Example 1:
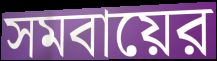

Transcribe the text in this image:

সমবায়ের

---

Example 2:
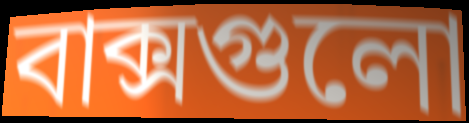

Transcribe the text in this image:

বাক্সগুলো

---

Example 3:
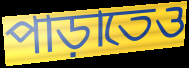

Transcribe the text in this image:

পাড়াতেও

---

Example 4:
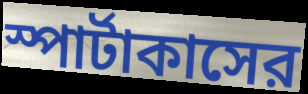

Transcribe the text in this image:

স্পার্টাকাসের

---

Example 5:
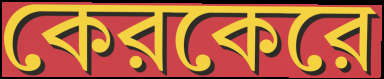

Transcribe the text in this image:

কেরকেরে